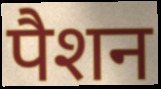
पैशन